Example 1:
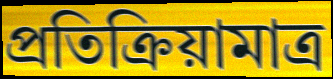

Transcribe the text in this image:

প্রতিক্রিয়ামাত্র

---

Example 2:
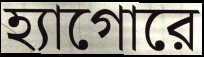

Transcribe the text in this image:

হ্যাগোরে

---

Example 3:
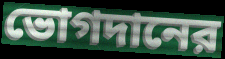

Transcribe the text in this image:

ভোগদানের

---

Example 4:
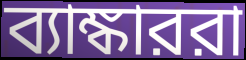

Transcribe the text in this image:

ব্যাঙ্কাররা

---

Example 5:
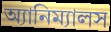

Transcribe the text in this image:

অ্যানিম্যালস